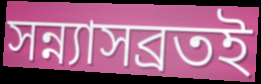
সন্ন্যাসব্রতই